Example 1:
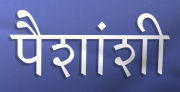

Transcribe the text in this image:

पैशांशी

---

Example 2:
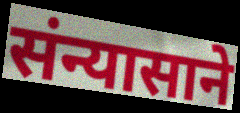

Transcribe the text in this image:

संन्यासाने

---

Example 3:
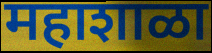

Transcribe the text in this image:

महाशाळा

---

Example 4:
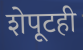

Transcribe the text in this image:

शेपूटही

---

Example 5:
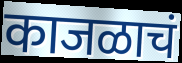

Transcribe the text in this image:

काजळाचं